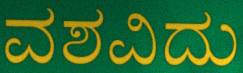
ವಶವಿದು